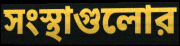
সংস্থাগুলোর